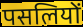
पसलियों